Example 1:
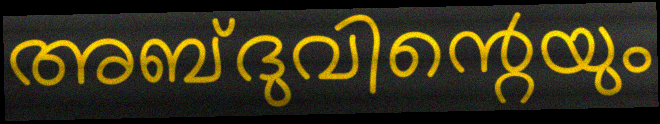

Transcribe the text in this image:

അബ്ദുവിന്റെയും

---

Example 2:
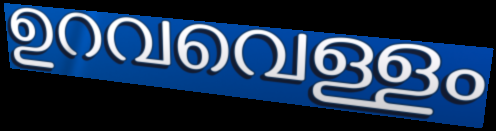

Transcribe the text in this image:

ഉറവവെള്ളം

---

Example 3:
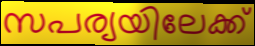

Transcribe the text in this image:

സപര്യയിലേക്ക്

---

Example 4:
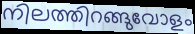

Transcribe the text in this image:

നിലത്തിറങ്ങുവോളം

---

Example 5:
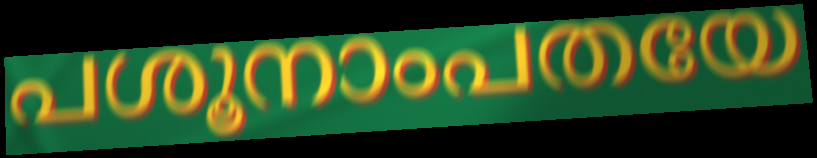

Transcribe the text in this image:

പശൂനാംപതയേ